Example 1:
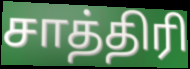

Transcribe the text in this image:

சாத்திரி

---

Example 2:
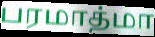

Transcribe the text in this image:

பரமாத்மா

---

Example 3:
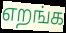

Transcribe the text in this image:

எறங்க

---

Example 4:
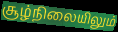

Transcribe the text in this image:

சூழ்நிலையிலும்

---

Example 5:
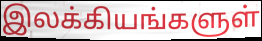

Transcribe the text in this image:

இலக்கியங்களுள்